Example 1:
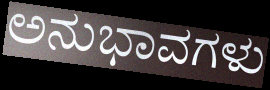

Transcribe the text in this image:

ಅನುಭಾವಗಳು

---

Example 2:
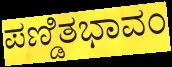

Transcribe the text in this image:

ಪಣ್ಡಿತಭಾವಂ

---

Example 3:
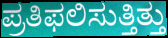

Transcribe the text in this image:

ಪ್ರತಿಫಲಿಸುತ್ತಿತ್ತು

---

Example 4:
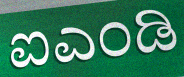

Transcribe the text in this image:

ಐಎಂಡಿ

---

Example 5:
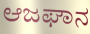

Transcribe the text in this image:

ಆಜಘಾನ